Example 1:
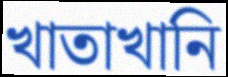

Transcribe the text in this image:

খাতাখানি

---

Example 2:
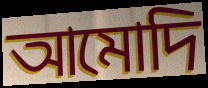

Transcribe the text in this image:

আমোদি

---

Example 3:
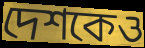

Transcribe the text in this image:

দেশকেও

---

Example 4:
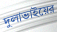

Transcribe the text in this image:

দুলাভাইয়ের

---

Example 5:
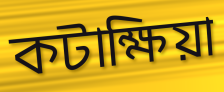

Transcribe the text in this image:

কটাক্ষিয়া